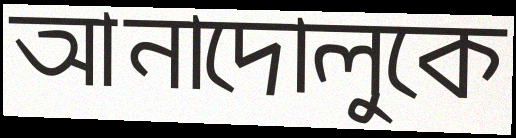
আনাদোলুকে